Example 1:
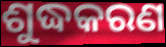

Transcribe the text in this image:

ଶୁଦ୍ଧକରଣ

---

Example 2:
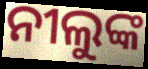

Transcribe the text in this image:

ନୀଲୁଙ୍କ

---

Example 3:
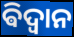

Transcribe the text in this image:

ଵିଦ୍ଵାନ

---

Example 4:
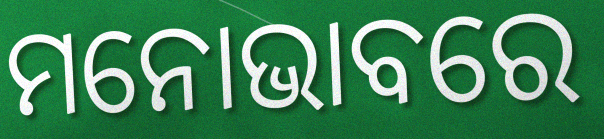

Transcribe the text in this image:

ମନୋଭାବରେ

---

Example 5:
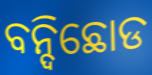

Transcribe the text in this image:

ବନ୍ଦିଛୋଡ